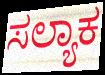
ಸಲ್ಯಾಕ